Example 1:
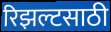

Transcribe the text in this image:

रिझल्टसाठी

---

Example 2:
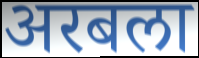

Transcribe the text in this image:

अरबला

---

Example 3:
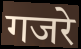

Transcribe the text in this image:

गजरे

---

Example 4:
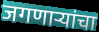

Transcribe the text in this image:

जगणाऱ्यांचा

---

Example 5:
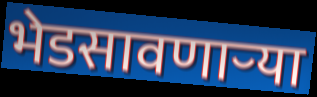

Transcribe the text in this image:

भेडसावणाऱ्या